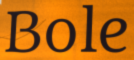
Bole